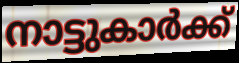
നാട്ടുകാർക്ക്